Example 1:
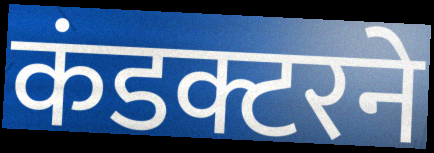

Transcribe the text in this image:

कंडक्टरने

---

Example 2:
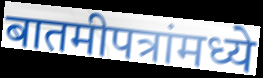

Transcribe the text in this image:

बातमीपत्रांमध्ये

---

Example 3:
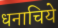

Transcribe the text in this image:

धनाचिये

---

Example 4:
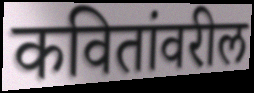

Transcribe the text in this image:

कवितांवरील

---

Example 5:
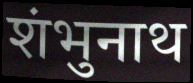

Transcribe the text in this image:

शंभुनाथ